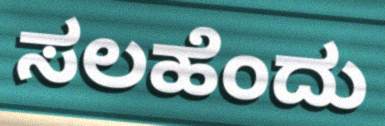
ಸಲಹೆಂದು